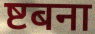
ष्टबना